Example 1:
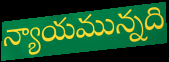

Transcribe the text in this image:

న్యాయమున్నది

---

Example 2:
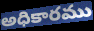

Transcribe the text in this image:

అధికారము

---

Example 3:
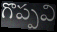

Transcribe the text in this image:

గొప్పవి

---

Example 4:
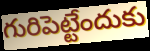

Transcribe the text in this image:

గురిపెట్టేందుకు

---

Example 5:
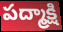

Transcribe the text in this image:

పద్మాక్షి